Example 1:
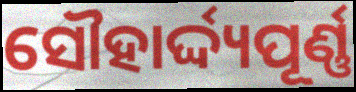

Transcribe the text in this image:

ସୌହାର୍ଦ୍ଦ୍ୟପୂର୍ଣ୍ଣ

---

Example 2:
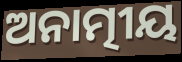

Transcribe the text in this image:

ଅନାତ୍ମୀୟ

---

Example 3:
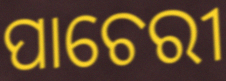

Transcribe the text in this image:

ପାଚେରୀ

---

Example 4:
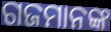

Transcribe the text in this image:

ଗଜମାନଙ୍କ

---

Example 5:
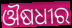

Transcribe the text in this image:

ଔଷଧୀର